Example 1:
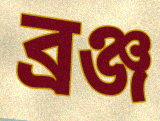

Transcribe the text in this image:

ব্ৰঞ্জ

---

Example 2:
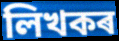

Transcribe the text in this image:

লিখকৰ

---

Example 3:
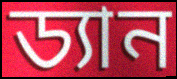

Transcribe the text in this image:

ড্যান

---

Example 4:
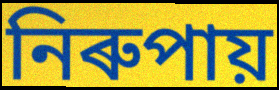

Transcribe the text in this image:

নিৰুপায়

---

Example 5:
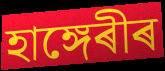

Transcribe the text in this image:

হাঙ্গেৰীৰ